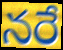
నరే